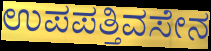
ಉಪಪತ್ತಿವಸೇನ